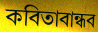
কবিতাবান্ধব